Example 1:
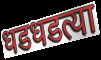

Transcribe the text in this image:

धडधडत्या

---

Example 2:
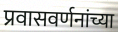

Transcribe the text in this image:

प्रवासवर्णनांच्या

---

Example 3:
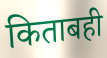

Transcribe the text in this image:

किताबही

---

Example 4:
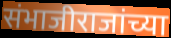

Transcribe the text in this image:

संभाजीराजांच्या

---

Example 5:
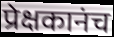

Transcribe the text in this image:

प्रेक्षकानंच